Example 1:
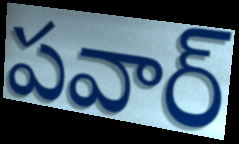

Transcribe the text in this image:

పవార్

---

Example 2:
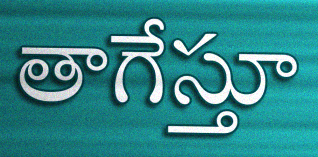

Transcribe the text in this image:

తాగేస్తూ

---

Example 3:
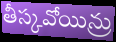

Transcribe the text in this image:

తీస్కవోయిన్రు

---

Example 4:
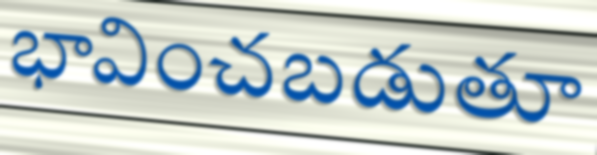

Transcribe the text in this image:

భావించబడుతూ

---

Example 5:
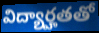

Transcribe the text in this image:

విద్యార్హతతో